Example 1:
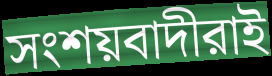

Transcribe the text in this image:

সংশয়বাদীরাই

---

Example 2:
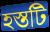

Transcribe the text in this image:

হস্তটি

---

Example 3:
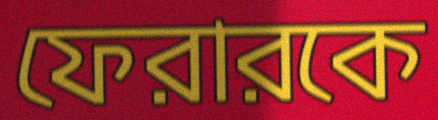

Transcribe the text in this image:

ফেরারকে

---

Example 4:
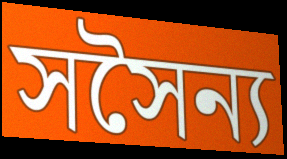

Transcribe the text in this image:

সসৈন্য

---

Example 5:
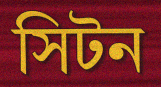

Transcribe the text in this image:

সিটন